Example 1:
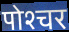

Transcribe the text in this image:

पोश्चर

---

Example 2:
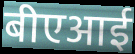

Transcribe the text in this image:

बीएआई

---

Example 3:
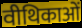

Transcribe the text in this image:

वीथिकाओं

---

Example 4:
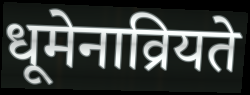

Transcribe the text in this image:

धूमेनाव्रियते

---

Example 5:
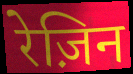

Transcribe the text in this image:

रेज़िन